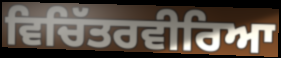
ਵਿਚਿੱਤਰਵੀਰਿਆ